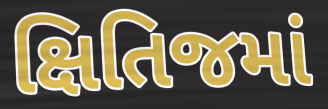
ક્ષિતિજમાં